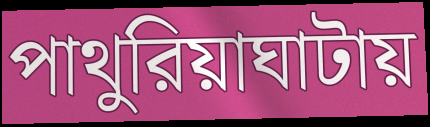
পাথুরিয়াঘাটায়